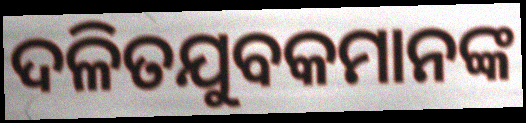
ଦଳିତଯୁବକମାନଙ୍କ